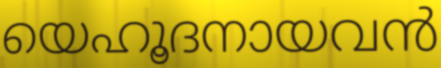
യെഹൂദനായവൻ